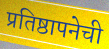
प्रतिष्ठापनेची